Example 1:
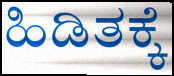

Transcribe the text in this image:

ಹಿಡಿತಕ್ಕೆ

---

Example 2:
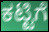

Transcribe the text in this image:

ಕಟ್ಟಿಗೆ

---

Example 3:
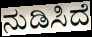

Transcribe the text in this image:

ನುಡಿಸಿದೆ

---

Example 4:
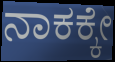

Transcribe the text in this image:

ನಾಕಕ್ಕೇ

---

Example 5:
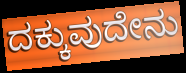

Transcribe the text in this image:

ದಕ್ಕುವುದೇನು